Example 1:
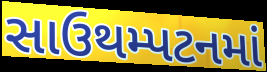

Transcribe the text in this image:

સાઉથમ્પટનમાં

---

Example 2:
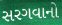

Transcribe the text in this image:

સરગવાનો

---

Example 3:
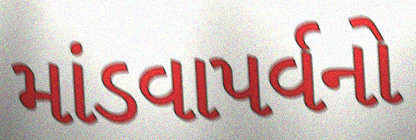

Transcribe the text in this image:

માંડવાપર્વનો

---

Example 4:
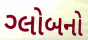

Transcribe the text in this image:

ગ્લોબનો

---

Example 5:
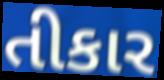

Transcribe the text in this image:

તીકાર